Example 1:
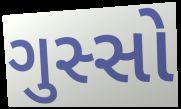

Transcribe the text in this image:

ગુસ્સો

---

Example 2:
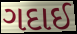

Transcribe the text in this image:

ગદાઈ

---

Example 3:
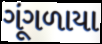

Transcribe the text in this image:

ગૂંગળાયા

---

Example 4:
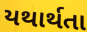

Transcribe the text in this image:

યથાર્થતા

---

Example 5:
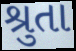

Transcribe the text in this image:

શ્રુતા